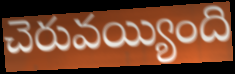
చెరువయ్యింది